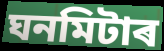
ঘনমিটাৰ